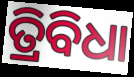
ତ୍ରିବିଧା